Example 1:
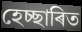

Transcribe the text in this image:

হেচ্ছাৰিত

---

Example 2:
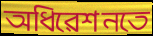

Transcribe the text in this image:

অধিৱেশনতে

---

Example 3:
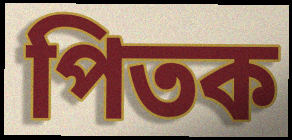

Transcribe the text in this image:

পিতক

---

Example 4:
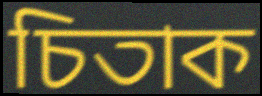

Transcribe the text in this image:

চিতাক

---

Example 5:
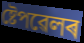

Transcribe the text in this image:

ষ্টেপৱেলৰ